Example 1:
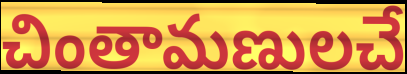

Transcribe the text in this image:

చింతామణులచే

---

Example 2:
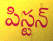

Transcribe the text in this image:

పిస్టన్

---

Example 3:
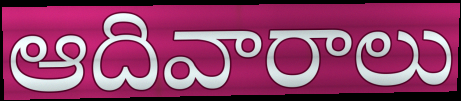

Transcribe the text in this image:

ఆదివారాలు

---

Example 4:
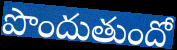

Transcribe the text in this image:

పొందుతుందో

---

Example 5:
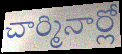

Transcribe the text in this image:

చార్మినార్లో